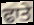
ਫਾਤੇ